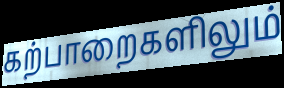
கற்பாறைகளிலும்